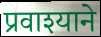
प्रवाश्याने